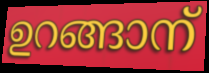
ഉറങ്ങാന്